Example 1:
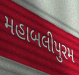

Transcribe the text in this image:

મહાબલીપુરમ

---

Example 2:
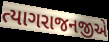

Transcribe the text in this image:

ત્યાગરાજનજીએ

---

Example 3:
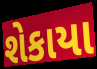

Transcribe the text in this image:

શેકાયા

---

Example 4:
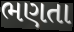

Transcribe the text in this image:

ભણતા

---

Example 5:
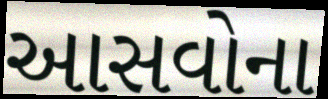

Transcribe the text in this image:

આસવોના